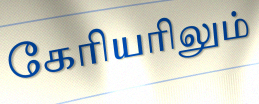
கேரியரிலும்